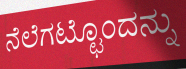
ನೆಲೆಗಟ್ಟೊಂದನ್ನು